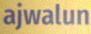
ajwalun